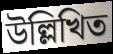
উল্লিখিত